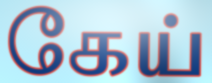
கேய்